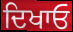
ਦਿਖਾਓ